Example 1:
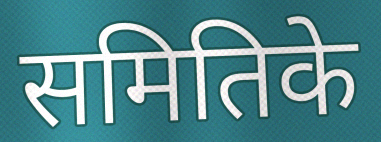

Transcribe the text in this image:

समितिके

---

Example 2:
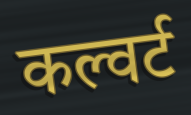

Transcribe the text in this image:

कल्वर्ट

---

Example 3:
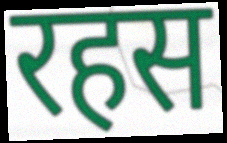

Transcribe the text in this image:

रहस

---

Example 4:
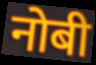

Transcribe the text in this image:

नोबी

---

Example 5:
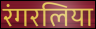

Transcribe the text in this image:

रंगरलिया